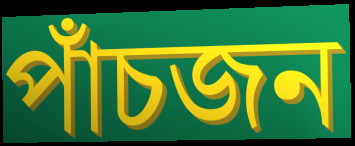
পাঁচজন